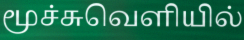
மூச்சுவெளியில்